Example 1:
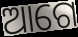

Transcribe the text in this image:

ଆଗେ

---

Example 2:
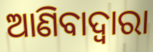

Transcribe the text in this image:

ଆଣିବାଦ୍ୱାରା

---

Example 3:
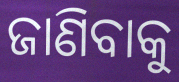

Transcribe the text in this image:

ଜାଣିବାକୁ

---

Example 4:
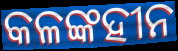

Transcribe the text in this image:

କଳଙ୍କହୀନ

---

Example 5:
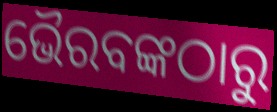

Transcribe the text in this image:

ଭୈରବଙ୍କଠାରୁ